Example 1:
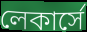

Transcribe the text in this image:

লেকার্সে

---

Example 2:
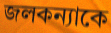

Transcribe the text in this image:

জলকন্যাকে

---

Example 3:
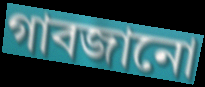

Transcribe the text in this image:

গাবজানো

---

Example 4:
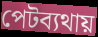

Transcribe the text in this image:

পেটব্যথায়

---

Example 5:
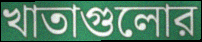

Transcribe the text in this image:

খাতাগুলোর